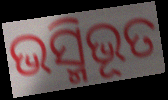
ଭସ୍ମିଭୂତ